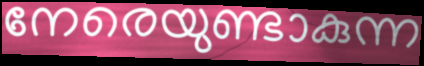
നേരെയുണ്ടാകുന്ന